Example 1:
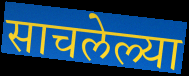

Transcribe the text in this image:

साचलेल्या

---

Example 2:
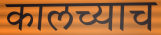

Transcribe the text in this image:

कालच्याच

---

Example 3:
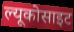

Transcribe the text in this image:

ल्यूकोसाइट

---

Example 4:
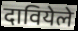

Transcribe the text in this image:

दावियेले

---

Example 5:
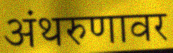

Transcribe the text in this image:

अंथरुणावर